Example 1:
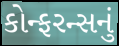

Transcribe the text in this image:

કોન્ફરન્સનું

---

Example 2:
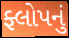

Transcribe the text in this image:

ફ્લોપનું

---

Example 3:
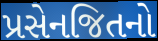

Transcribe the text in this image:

પ્રસેનજિતનો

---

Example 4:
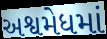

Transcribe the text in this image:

અશ્વમેધમાં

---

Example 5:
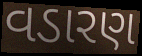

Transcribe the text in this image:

વડારણ